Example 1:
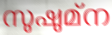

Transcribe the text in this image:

സുഷുമ്ന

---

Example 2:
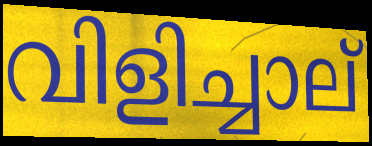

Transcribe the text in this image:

വിളിച്ചാല്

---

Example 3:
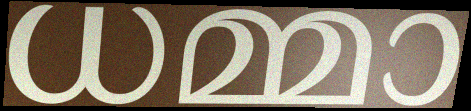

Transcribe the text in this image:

ധമ്മാ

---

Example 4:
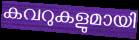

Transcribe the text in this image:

കവറുകളുമായി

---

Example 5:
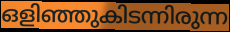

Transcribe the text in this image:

ഒളിഞ്ഞുകിടന്നിരുന്ന